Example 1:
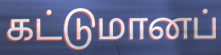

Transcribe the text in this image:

கட்டுமானப்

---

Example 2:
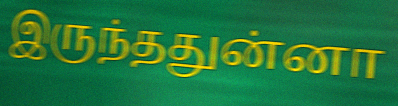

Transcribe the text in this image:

இருந்ததுன்னா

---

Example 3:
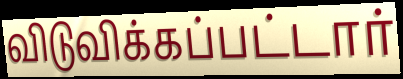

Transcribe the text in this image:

விடுவிக்கப்பட்டார்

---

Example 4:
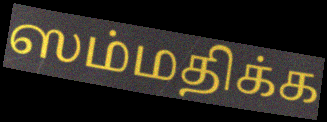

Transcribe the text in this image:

ஸம்மதிக்க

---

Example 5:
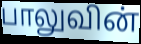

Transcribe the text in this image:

பாலுவின்